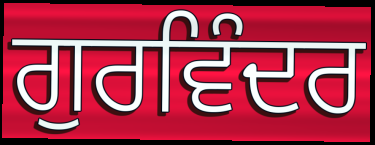
ਗੁਰਵਿੰਦਰ